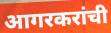
आगरकरांची